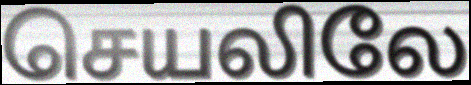
செயலிலே